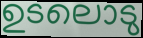
ഉടലൊടു